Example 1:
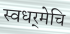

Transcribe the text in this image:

स्वधर्मेचि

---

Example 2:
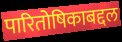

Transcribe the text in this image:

पारितोषिकाबद्दल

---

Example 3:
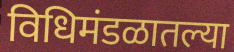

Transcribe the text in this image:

विधिमंडळातल्या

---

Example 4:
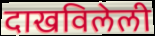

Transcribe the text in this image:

दाखविलेली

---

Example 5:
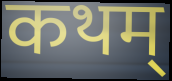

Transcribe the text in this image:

कथम्